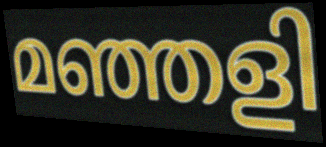
മഞ്ഞളി